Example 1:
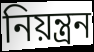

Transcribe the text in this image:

নিয়ন্ত্রন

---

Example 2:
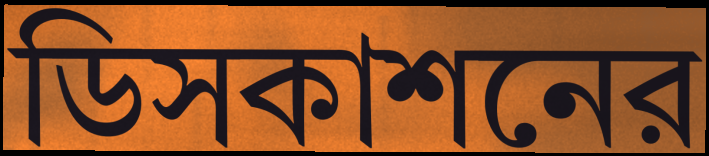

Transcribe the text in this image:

ডিসকাশনের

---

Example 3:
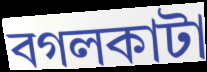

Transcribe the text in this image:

বগলকাটা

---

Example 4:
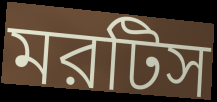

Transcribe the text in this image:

মরটিস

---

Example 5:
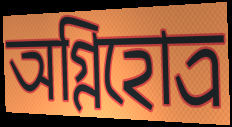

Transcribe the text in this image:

অগ্নিহোত্র